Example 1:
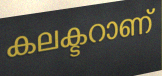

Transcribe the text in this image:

കലക്ടറാണ്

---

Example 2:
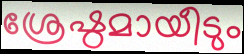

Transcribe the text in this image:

ശ്രേഷ്ഠമായീടും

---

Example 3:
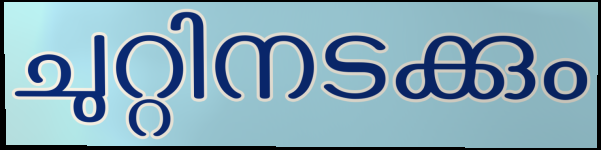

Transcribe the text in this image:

ചുറ്റിനടക്കും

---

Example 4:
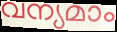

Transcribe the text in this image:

വന്യമാം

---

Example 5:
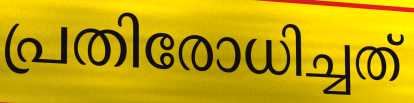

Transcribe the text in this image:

പ്രതിരോധിച്ചത്